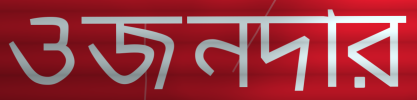
ওজনদার